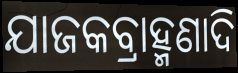
ଯାଜକବ୍ରାହ୍ମଣାଦି